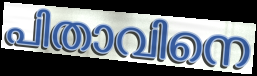
പിതാവിനെ